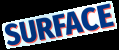
SURFACE